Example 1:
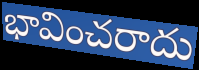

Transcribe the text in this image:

భావించరాదు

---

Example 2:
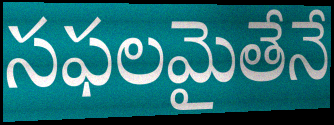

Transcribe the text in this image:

సఫలమైతేనే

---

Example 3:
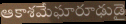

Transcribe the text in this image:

ఆకాశమేఘారూఢుడై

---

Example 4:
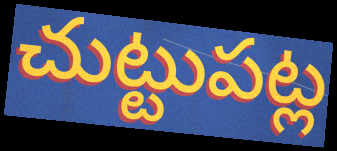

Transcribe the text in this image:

చుట్టుపట్ల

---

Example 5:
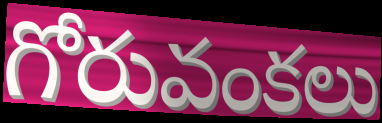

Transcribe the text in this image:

గోరువంకలు